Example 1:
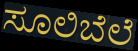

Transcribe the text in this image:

ಸೂಲಿಬೆಲೆ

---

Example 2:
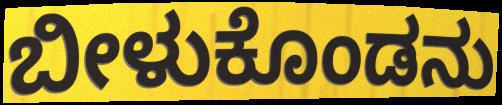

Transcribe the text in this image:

ಬೀಳುಕೊಂಡನು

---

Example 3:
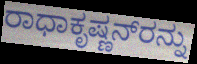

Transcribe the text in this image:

ರಾಧಾಕೃಷ್ಣನ್‌ರನ್ನು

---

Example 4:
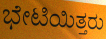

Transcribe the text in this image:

ಭೇಟಿಯಿತ್ತರು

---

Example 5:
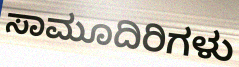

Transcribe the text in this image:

ಸಾಮೂದಿರಿಗಳು